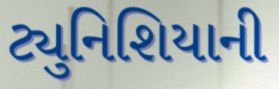
ટ્યુનિશિયાની